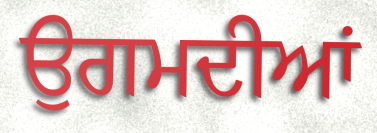
ਉਗਮਦੀਆਂ